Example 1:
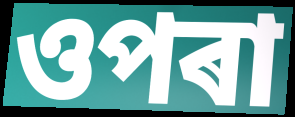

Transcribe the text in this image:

ওপৰা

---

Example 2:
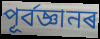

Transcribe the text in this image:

পূৰ্বজ্ঞানৰ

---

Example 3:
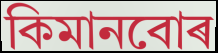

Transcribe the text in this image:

কিমানবোৰ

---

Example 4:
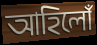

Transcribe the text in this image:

আহিলোঁ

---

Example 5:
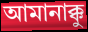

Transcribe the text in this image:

আমানাক্কু